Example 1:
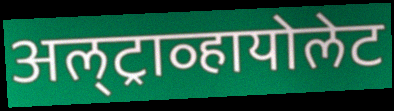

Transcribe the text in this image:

अल्ट्राव्हायोलेट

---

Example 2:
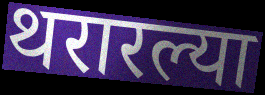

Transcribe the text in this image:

थरारल्या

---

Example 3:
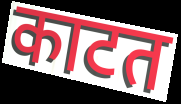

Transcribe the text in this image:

काटत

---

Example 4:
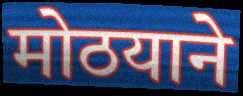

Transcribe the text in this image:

मोठयाने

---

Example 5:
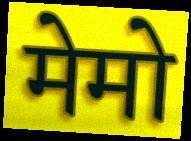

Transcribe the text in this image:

मेमो